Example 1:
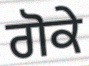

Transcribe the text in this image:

ਗੋਕੇ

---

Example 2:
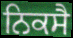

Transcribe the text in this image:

ਨਿਕਸੈ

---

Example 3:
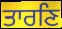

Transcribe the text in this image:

ਤਾਰਣਿ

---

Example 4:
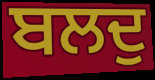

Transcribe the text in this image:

ਬਲਦੁ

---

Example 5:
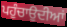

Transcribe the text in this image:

ਪਹੁੰਚਾਉਦੀਆਂ